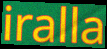
iralla